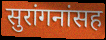
सुरांगनांसह